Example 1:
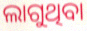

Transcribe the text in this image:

ଲାଗୁଥିବା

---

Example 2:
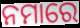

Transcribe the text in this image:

ନମାରେ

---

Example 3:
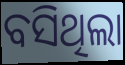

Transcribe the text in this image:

ବସିଥିଲା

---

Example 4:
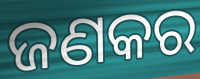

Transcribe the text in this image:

ଜଣକର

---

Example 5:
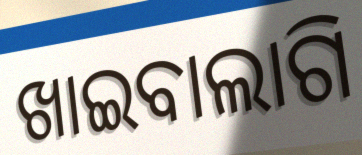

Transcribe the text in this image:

ଖାଇବାଲାଗି